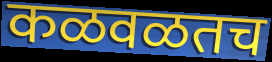
कळवळतच